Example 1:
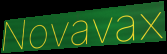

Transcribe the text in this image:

Novavax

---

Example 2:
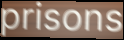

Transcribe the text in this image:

prisons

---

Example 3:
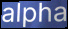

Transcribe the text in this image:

alpha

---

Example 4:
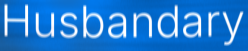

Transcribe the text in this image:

Husbandary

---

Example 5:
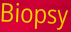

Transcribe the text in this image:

Biopsy